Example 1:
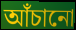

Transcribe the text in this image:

আঁচানো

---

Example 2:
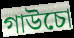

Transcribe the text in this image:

গাউচো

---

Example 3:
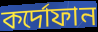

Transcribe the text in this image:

কর্দোফান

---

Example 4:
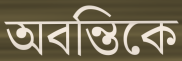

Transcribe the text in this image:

অবন্তিকে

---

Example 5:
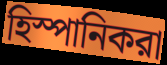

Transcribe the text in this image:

হিস্পানিকরা